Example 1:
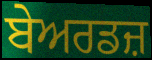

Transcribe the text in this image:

ਬੇਅਰਡਜ਼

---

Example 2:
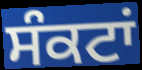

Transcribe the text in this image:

ਸੰਕਟਾਂ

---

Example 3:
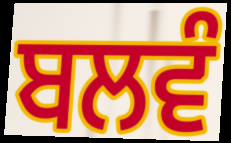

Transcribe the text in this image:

ਬਲਵੰ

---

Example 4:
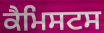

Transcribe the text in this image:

ਕੈਮਿਸਟਸ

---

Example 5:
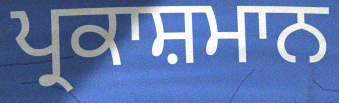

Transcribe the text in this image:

ਪ੍ਰਕਾਸ਼ਮਾਨ